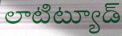
లాటిట్యూడ్